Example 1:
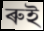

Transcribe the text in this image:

ৰুই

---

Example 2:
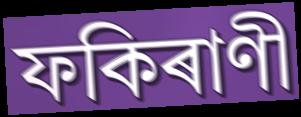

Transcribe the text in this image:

ফকিৰাণী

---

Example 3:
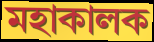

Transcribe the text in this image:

মহাকালক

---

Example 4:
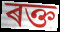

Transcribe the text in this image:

ৰক্ত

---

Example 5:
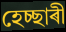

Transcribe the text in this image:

হেচ্ছাৰী